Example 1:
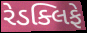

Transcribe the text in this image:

રેડક્લિફે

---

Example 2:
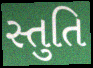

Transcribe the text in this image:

સ્તુતિ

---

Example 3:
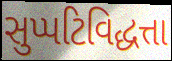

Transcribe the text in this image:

સુપ્પટિવિદ્ધત્તા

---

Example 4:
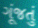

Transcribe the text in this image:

ગૂંજતું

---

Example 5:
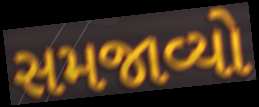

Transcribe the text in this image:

સમજાવ્યો